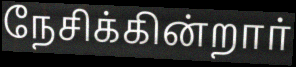
நேசிக்கின்றார்